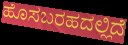
ಹೊಸಬರಹದಲ್ಲಿದೆ